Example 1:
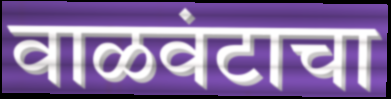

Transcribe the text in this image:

वाळवंटाचा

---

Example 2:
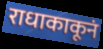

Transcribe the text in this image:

राधाकाकूनं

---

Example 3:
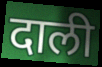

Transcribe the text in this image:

दाली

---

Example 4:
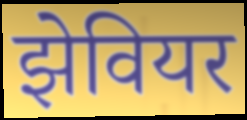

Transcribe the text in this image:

झेवियर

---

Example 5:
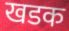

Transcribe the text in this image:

खडक